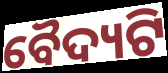
ବୈଦ୍ୟଟି